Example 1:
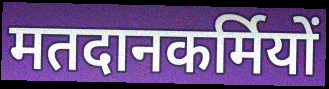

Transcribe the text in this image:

मतदानकर्मियों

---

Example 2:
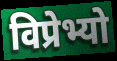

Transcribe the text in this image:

विप्रेभ्यो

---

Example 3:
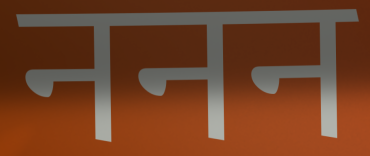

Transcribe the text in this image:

ननन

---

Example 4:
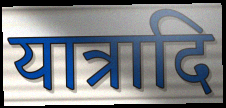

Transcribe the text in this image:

यात्रादि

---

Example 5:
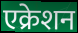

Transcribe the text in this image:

एक्रेशन